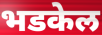
भडकेल